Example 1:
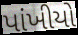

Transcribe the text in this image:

પાંખીયો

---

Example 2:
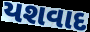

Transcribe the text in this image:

યશવાદ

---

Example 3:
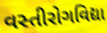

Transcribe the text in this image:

વસ્તીરોગવિદ્યા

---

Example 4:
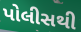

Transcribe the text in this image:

પોલીસથી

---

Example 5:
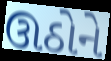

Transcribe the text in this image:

ઊઠોને